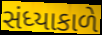
સંધ્યાકાળે